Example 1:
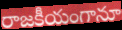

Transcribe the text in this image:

రాజకీయంగానూ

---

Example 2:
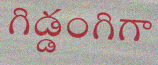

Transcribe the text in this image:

గిడ్డంగిగా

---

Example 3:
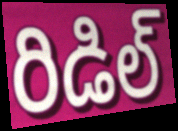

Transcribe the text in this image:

రిడిల్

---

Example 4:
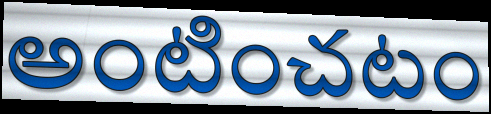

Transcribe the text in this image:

అంటించటం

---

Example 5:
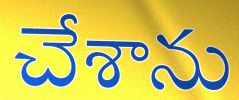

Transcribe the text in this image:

చేశాను